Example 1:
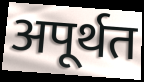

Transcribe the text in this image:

अपूर्थत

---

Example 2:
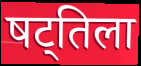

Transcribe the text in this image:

षट्तिला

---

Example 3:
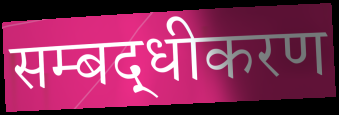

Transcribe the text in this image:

सम्बद्धीकरण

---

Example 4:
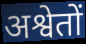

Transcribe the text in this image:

अश्वेतों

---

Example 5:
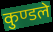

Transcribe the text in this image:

कुण्डले